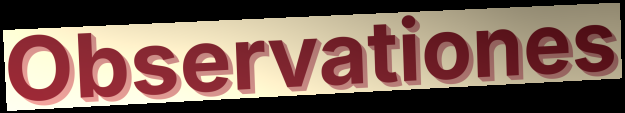
Observationes